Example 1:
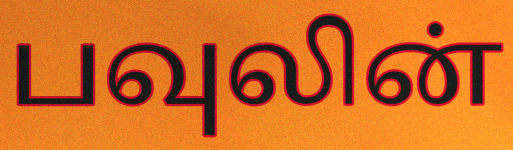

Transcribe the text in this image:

பவுலின்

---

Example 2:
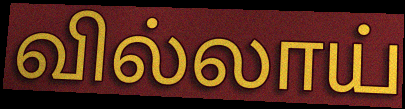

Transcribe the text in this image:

வில்லாய்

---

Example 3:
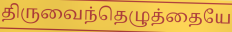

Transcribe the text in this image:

திருவைந்தெழுத்தையே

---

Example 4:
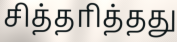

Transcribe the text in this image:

சித்தரித்தது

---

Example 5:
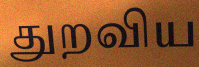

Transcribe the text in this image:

துறவிய